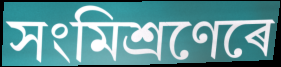
সংমিশ্ৰণেৰে